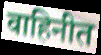
वाहिनीत